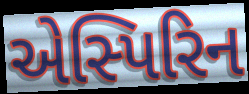
એસ્પિરિન